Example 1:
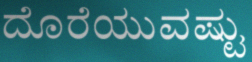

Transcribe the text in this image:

ದೊರೆಯುವಷ್ಟು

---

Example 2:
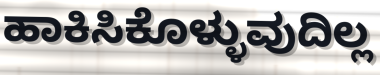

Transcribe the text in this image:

ಹಾಕಿಸಿಕೊಳ್ಳುವುದಿಲ್ಲ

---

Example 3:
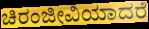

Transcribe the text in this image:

ಚಿರಂಜೀವಿಯಾದರೆ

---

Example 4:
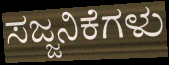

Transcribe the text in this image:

ಸಜ್ಜನಿಕೆಗಳು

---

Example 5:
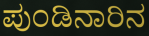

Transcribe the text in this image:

ಪುಂಡಿನಾರಿನ